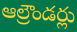
ఆల్రౌండర్లు